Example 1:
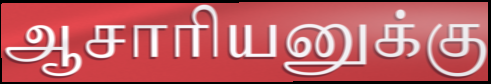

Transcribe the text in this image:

ஆசாரியனுக்கு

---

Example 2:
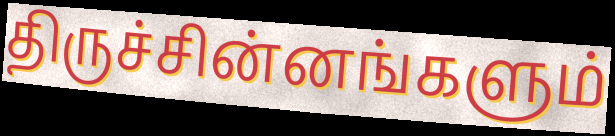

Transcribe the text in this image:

திருச்சின்னங்களும்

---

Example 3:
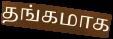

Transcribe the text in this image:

தங்கமாக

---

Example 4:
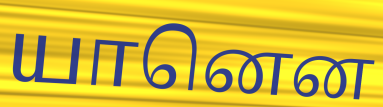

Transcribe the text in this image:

யானென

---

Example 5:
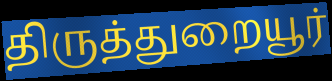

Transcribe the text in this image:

திருத்துறையூர்